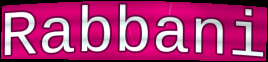
Rabbani